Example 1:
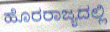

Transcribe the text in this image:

ಹೊರರಾಜ್ಯದಲ್ಲಿ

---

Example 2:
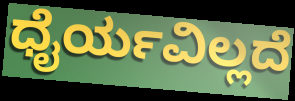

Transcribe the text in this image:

ಧೈರ್ಯವಿಲ್ಲದೆ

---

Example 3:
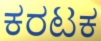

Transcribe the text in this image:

ಕರಟಕ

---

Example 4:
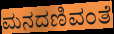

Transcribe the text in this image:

ಮನದಣಿವಂತೆ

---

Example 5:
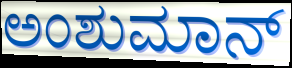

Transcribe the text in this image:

ಅಂಶುಮಾನ್